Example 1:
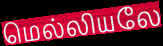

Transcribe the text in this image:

மெல்லியலே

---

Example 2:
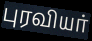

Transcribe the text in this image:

புரவியர்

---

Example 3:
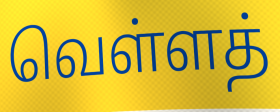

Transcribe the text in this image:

வெள்ளத்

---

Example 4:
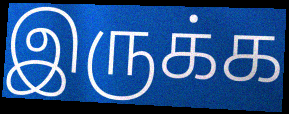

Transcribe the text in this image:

இருக்க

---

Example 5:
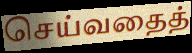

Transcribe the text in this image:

செய்வதைத்